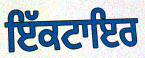
ਇੱਕਟਾਇਰ